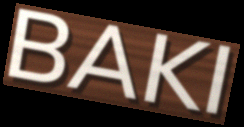
BAKI